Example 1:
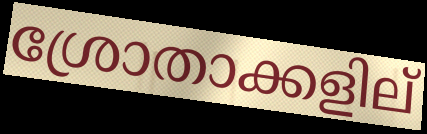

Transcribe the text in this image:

ശ്രോതാക്കളില്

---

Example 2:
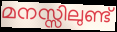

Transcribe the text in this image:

മനസ്സിലുണ്ട്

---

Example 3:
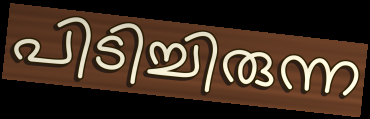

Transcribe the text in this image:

പിടിച്ചിരുന്ന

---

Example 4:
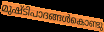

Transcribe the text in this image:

മുഷ്ടിപാദങ്ങൾകൊണ്ടു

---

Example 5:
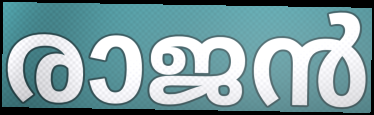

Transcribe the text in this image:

രാജൻ